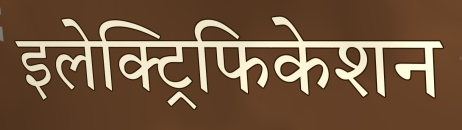
इलेक्ट्रिफिकेशन